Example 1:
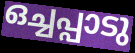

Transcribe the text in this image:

ഒച്ചപ്പാടു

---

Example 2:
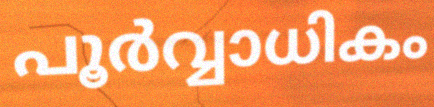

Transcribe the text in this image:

പൂർവ്വാധികം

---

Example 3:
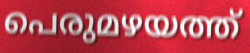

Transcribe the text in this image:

പെരുമഴയത്ത്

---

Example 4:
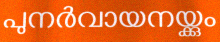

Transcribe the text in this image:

പുനർവായനയ്ക്കും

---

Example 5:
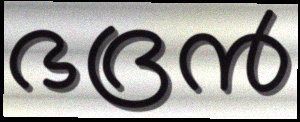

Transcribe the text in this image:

ഭദ്രൻ